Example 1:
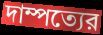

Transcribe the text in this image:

দাম্পত্যের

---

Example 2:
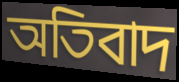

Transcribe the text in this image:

অতিবাদ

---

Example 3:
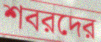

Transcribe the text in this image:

শবরদের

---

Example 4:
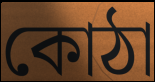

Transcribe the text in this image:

কোঠা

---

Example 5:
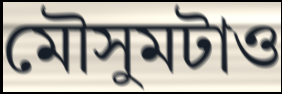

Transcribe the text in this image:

মৌসুমটাও